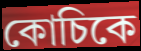
কোচিকে